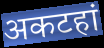
अकटहां